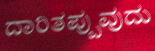
ದಾರಿತಪ್ಪುವುದು